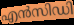
എൻസിഡി